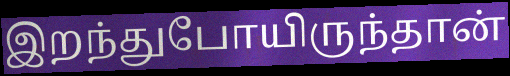
இறந்துபோயிருந்தான்